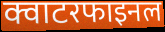
क्वाटरफाइनल